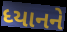
ધ્યાનને